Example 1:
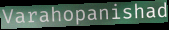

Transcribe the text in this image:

Varahopanishad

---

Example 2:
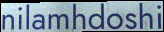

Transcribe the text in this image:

nilamhdoshi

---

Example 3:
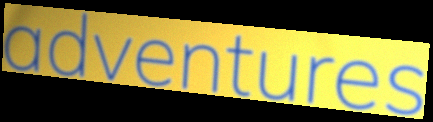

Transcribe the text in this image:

adventures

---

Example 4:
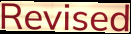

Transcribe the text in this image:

Revised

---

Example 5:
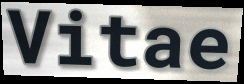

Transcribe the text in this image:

Vitae